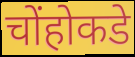
चोंहोकडे